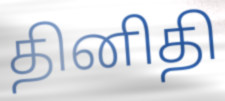
தினிதி